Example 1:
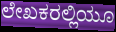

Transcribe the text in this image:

ಲೇಖಕರಲ್ಲಿಯೂ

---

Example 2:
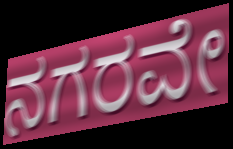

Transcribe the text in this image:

ನಗರವೇ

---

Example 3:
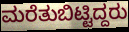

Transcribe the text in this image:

ಮರೆತುಬಿಟ್ಟಿದ್ದರು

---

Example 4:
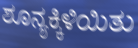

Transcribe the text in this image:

ಶೂನ್ಯಕ್ಕಿಳಿಯಿತು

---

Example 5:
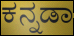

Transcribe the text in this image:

ಕನ್ನಡಾ